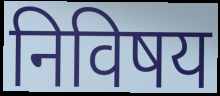
निविषय